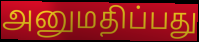
அனுமதிப்பது